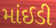
માંઈડી